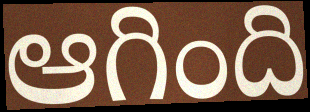
ఆగింది